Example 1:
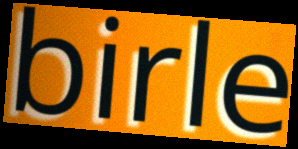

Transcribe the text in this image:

birle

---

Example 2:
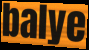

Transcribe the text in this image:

balye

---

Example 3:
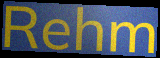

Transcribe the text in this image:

Rehm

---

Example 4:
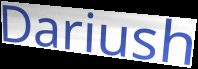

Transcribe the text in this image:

Dariush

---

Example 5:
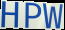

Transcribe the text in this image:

HPW